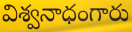
విశ్వనాధంగారు